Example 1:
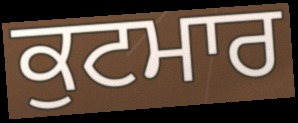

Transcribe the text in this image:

ਕੁਟਮਾਰ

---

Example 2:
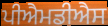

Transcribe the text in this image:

ਪੀਐਮਡੀਐਸ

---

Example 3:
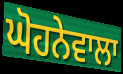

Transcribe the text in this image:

ਘੋਹਨੇਵਾਲਾ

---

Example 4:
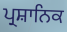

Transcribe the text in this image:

ਪ੍ਰਸ਼ਾਨਿਕ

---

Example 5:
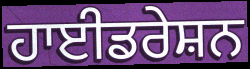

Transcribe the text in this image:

ਹਾਈਡਰੇਸ਼ਨ